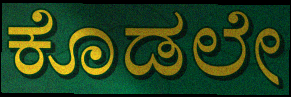
ಕೊಡಲೇ